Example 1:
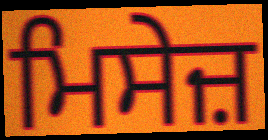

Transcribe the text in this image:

ਮਿਸੇਜ਼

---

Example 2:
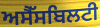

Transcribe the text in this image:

ਅਸੈੱਸਬਿਲਟੀ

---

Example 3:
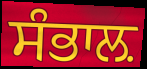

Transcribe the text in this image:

ਸੰਭਾਲ਼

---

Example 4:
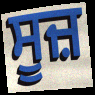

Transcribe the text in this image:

ਸੂਜ਼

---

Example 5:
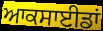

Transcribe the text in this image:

ਆਕਸਾਈਡਾਂ